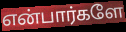
என்பார்களே